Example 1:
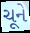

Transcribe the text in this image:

ચૂને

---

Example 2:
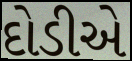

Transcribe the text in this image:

દોડીએ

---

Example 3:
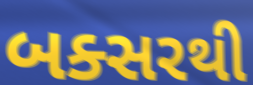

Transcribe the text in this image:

બક્સરથી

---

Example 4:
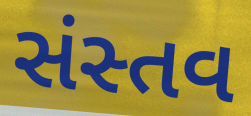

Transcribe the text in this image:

સંસ્તવ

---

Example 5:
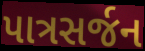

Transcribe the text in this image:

પાત્રસર્જન